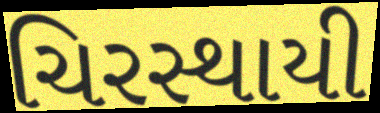
ચિરસ્થાયી